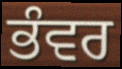
ਭੰਵਰ